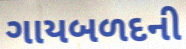
ગાયબળદની